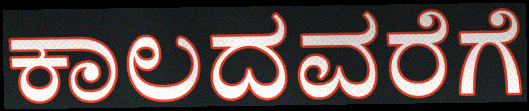
ಕಾಲದವರೆಗೆ